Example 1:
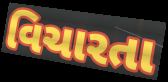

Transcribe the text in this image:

વિચારતા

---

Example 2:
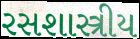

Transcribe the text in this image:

રસશાસ્ત્રીય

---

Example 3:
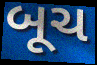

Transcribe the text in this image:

બૂચ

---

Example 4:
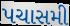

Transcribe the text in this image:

પચાસમી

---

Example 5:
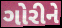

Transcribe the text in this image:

ગોરીને